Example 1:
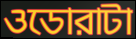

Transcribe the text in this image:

ওডোরাটা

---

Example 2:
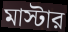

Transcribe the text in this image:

মাস্টার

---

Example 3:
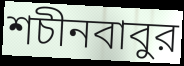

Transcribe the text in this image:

শচীনবাবুর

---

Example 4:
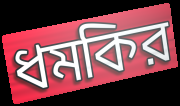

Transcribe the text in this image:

ধমকির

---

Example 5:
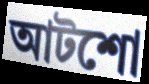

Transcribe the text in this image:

আটশো